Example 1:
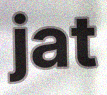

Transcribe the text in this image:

jat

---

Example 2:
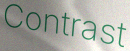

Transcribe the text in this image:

Contrast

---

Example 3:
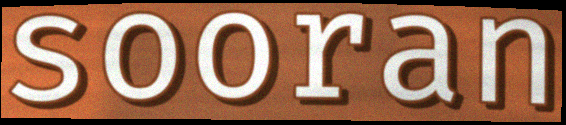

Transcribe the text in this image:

sooran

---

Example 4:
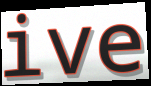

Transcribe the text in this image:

ive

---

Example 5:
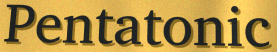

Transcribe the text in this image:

Pentatonic